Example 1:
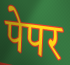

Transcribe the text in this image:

पेपर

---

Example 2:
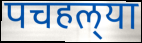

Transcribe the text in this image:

पचहल्या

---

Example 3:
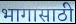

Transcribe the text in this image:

भागासाठी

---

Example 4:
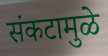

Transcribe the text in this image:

संकटामुळे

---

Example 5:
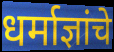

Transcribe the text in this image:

धर्माज्ञांचे